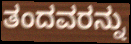
ತಂದವರನ್ನು